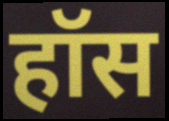
हॉस